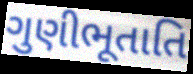
ગુણીભૂતાતિ